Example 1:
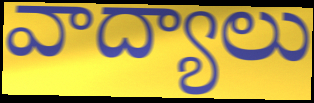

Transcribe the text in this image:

వాద్యాలు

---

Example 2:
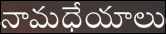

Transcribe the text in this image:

నామధేయాలు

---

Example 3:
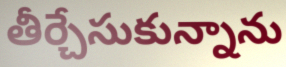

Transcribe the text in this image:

తీర్చేసుకున్నాను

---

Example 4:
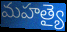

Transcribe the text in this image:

మహత్యై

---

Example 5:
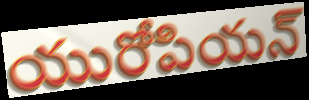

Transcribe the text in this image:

యురోపియన్